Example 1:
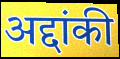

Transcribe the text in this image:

अद्दांकी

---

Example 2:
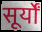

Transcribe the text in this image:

सूर्यों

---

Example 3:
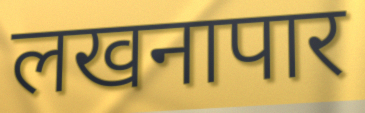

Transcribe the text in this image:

लखनापार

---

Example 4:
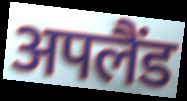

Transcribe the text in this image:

अपलैंड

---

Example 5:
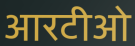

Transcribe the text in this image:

आरटीओ